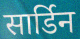
सार्डिन